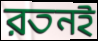
রতনই